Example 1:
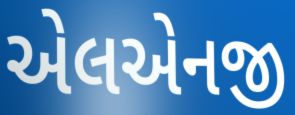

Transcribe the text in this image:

એલએનજી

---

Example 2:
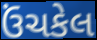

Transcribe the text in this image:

ઉંચકેલ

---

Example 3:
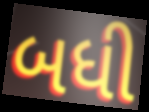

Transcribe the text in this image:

બધી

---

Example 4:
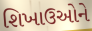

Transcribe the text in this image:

શિખાઉઓને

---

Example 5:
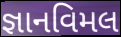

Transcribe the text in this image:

જ્ઞાનવિમલ